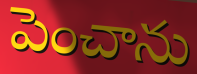
పెంచాను